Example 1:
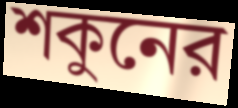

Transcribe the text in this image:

শকুনের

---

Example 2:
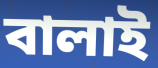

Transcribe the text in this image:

বালাই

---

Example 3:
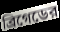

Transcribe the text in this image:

ব্রিগেডের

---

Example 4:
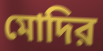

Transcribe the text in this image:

মোদির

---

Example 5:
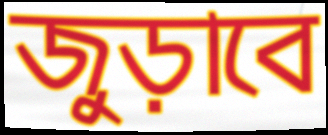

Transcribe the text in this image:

জুড়াবে